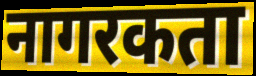
नागरकता